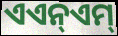
ଏଏନ୍ଏମ୍